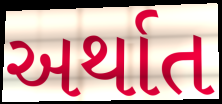
અર્થાત